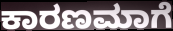
ಕಾರಣಮಾಗೆ